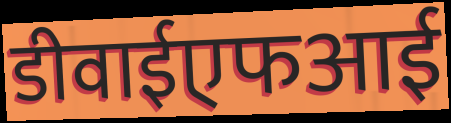
डीवाईएफआई